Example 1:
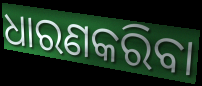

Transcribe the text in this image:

ଧାରଣକରିବା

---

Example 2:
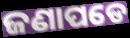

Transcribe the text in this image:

ଜଣାପଡେ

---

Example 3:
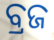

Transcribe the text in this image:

ବ୍ରଜ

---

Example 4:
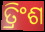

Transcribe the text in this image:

ତ୍ରିଂଶ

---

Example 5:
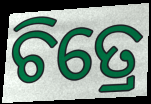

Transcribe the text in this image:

ଚିତ୍ରେ